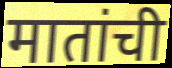
मातांची